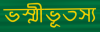
ভস্মীভূতস্য